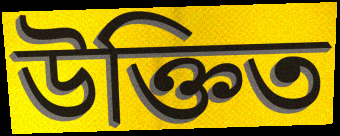
উক্তিত